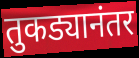
तुकड्यानंतर